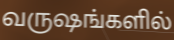
வருஷங்களில்